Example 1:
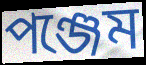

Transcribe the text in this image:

পঞ্জেম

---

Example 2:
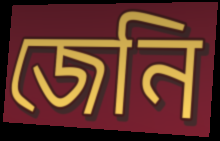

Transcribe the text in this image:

জেনি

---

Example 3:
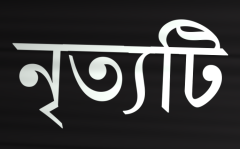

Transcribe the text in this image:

নৃত্যটি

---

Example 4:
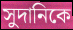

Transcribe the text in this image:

সুদানিকে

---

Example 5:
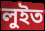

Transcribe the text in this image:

লুইত